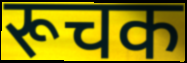
रूचक